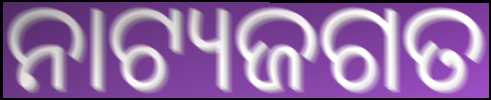
ନାଟ୍ୟଜଗତ